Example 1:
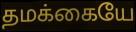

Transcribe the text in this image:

தமக்கையே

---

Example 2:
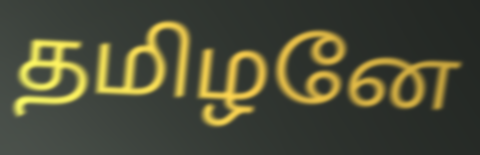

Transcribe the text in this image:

தமிழனே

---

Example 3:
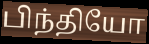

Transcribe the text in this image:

பிந்தியோ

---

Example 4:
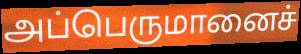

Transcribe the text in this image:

அப்பெருமானைச்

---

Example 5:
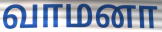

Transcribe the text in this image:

வாமனா